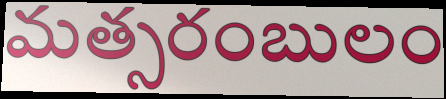
మత్సరంబులం